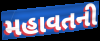
મહાવતની